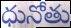
ధునోతు